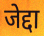
जेद्दा